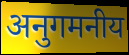
अनुगमनीय